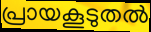
പ്രായകൂടുതൽ